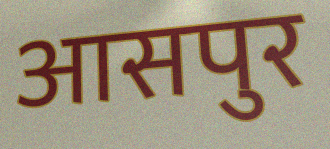
आसपुर